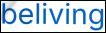
beliving